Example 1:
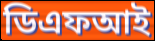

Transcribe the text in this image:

ডিএফআই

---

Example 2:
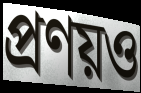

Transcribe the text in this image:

প্রণয়ও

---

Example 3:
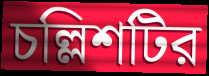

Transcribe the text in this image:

চল্লিশটির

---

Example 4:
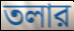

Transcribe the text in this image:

তলার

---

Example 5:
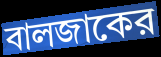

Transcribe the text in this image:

বালজাকের